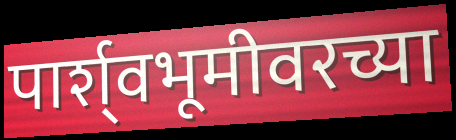
पार्श्वभूमीवरच्या